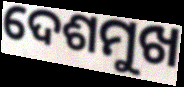
ଦେଶମୁଖ